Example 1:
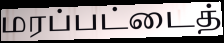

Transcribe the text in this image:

மரப்பட்டைத்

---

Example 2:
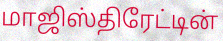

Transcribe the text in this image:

மாஜிஸ்திரேட்டின்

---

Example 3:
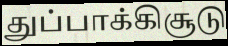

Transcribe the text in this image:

துப்பாக்கிசூடு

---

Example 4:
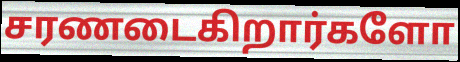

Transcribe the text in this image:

சரணடைகிறார்களோ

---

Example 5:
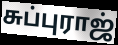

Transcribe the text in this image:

சுப்புராஜ்